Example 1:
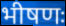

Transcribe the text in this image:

भीषणः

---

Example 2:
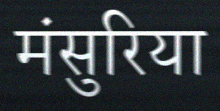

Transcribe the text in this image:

मंसुरिया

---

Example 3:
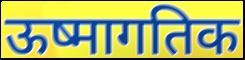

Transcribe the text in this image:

ऊष्मागतिक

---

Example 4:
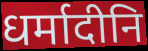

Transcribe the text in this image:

धर्मादीनि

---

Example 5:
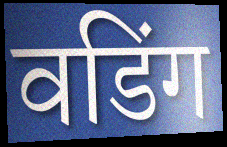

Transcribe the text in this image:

वडिंग